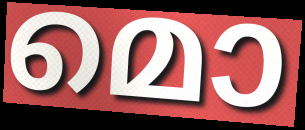
മൊ